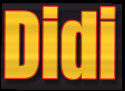
Didi